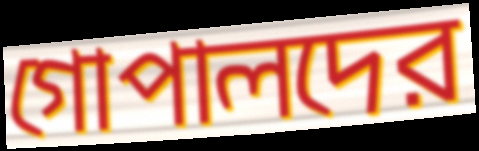
গোপালদের